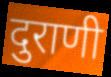
दुराणी